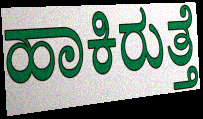
ಹಾಕಿರುತ್ತೆ